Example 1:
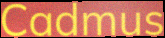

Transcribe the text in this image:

Cadmus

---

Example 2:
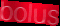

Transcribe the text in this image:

bolus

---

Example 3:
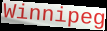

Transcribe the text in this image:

Winnipeg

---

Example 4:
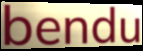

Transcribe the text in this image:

bendu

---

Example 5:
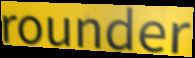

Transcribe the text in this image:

rounder